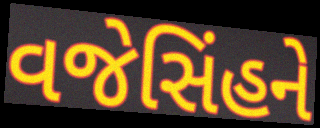
વજેસિંહને